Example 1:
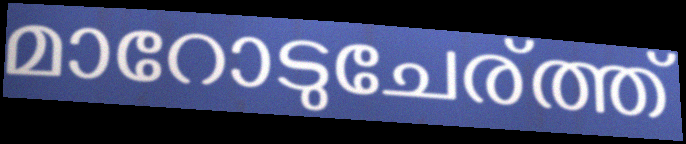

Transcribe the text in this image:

മാറോടുചേര്ത്ത്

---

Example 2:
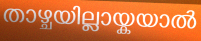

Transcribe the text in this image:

താഴ്ചയില്ലായ്കയാൽ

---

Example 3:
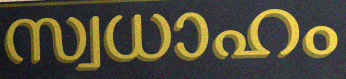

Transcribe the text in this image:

സ്വധാഹം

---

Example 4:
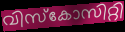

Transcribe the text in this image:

വിസ്കോസിറ്റി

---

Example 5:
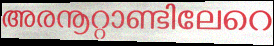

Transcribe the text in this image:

അരനൂറ്റാണ്ടിലേറെ